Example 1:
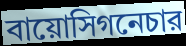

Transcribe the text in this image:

বায়োসিগনেচার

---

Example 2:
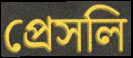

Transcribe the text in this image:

প্রেসলি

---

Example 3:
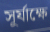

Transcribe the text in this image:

সূর্যাক্ষে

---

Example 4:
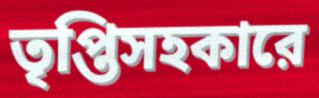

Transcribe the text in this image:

তৃপ্তিসহকারে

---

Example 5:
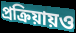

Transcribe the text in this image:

প্রক্রিয়ায়ও